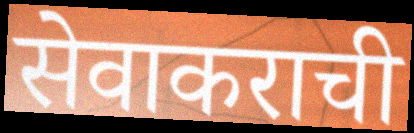
सेवाकराची